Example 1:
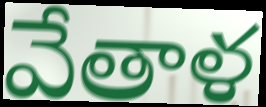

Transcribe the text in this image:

వేతాళ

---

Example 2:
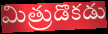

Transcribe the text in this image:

మిత్రుడొకడు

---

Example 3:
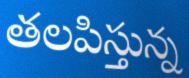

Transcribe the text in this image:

తలపిస్తున్న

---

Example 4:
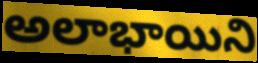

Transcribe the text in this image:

అలాభాయిని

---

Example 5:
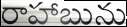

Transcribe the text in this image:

రాహాబును